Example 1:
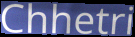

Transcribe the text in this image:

Chhetri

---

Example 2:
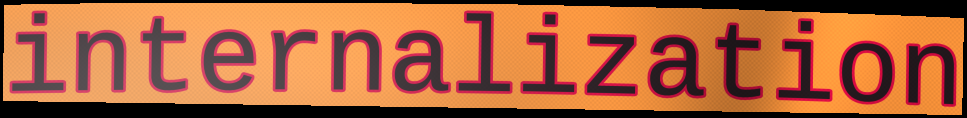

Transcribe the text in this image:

internalization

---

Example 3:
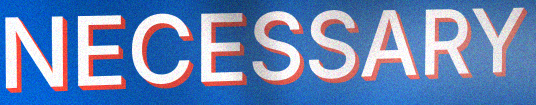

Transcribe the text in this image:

NECESSARY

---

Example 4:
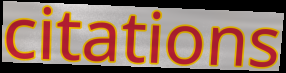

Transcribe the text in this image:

citations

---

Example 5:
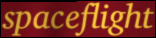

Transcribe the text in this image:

spaceflight